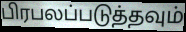
பிரபலப்படுத்தவும்